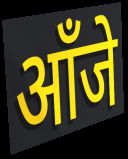
आँजे